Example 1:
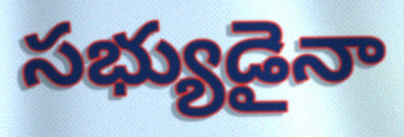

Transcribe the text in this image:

సభ్యుడైనా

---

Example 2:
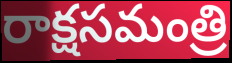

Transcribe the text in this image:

రాక్షసమంత్రి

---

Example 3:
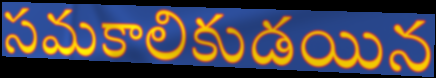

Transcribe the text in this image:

సమకాలికుడయిన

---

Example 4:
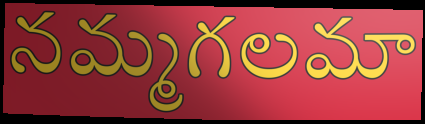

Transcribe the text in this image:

నమ్మగలమా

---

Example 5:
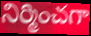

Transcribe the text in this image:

నిర్మించగా